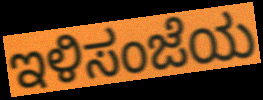
ಇಳಿಸಂಜೆಯ